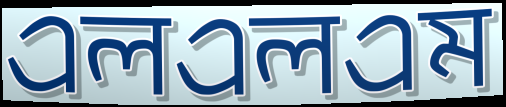
এলএলএম